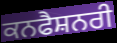
ਕਨਫੈਸ਼ਨਰੀ